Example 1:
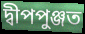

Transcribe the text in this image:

দ্বীপপুঞ্জত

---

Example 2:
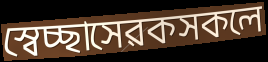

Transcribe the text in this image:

স্বেচ্ছাসেৱকসকলে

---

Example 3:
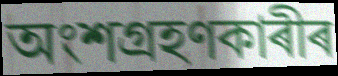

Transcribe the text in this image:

অংশগ্ৰহণকাৰীৰ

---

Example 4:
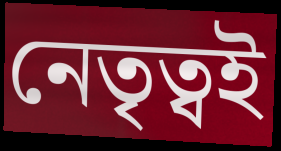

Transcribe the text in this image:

নেতৃত্বই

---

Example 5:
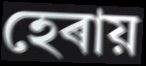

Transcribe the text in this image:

হেৰায়